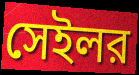
সেইলর